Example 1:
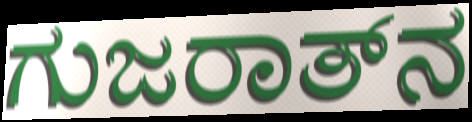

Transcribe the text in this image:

ಗುಜರಾತ್‍ನ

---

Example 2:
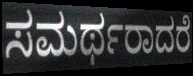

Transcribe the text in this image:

ಸಮರ್ಥರಾದರೆ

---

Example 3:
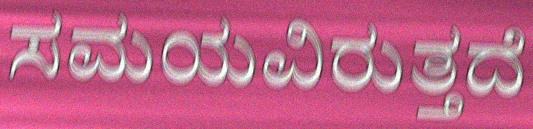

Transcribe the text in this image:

ಸಮಯವಿರುತ್ತದೆ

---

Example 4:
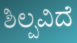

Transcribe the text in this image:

ಶಿಲ್ಪವಿದೆ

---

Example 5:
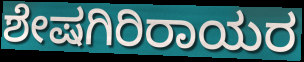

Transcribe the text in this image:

ಶೇಷಗಿರಿರಾಯರ